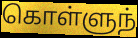
கொள்ளுந்